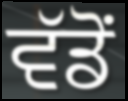
ਵੱਡੋਂ